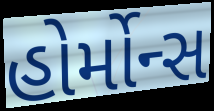
હોર્મોન્સ